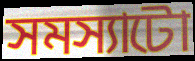
সমস্যাটো